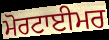
ਮੋਰਟਾਈਮਰ